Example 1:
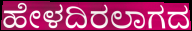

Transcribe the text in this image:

ಹೇಳದಿರಲಾಗದ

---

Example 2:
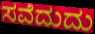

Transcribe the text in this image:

ಸವೆದುದು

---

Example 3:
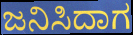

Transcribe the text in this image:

ಜನಿಸಿದಾಗ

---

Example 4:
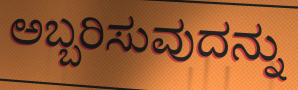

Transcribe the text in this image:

ಅಬ್ಬರಿಸುವುದನ್ನು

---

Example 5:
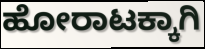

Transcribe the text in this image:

ಹೋರಾಟಕ್ಕಾಗಿ